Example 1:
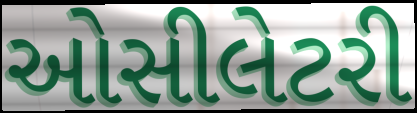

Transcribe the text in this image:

ઓસીલેટરી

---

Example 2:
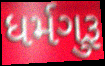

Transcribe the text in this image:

ધર્મગુરૂ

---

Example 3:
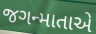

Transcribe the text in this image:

જગન્માતાએ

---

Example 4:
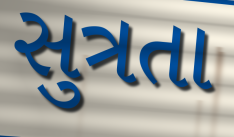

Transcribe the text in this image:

સુત્રતા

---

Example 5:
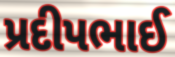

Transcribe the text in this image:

પ્રદીપભાઈ